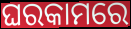
ଘରକାମରେ